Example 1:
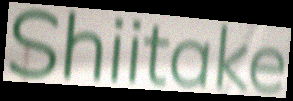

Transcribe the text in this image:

Shiitake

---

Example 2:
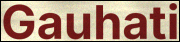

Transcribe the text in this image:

Gauhati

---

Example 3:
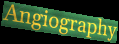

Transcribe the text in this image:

Angiography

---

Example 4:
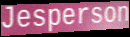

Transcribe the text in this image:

Jesperson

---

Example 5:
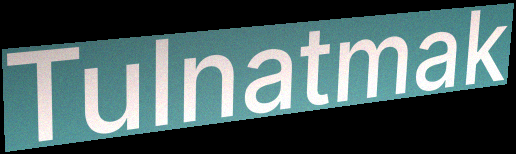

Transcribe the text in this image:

Tulnatmak